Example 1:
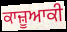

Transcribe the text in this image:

ਕਾਜ਼ੂਆਕੀ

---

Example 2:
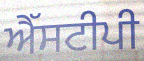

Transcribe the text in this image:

ਐੱਸਟੀਪੀ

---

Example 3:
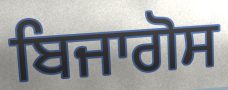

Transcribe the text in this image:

ਬਿਜਾਗੋਸ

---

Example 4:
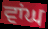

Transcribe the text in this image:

ਵਾਂਘ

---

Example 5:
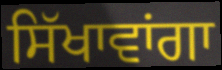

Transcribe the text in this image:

ਸਿੱਖਾਵਾਂਗਾ